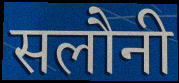
सलौनी